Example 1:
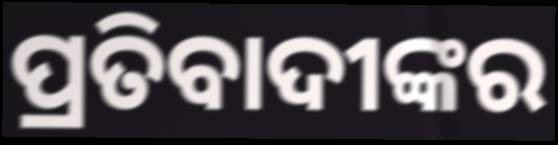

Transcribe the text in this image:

ପ୍ରତିବାଦୀଙ୍କର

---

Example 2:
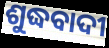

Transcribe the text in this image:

ଶୁଦ୍ଧବାଦୀ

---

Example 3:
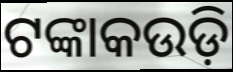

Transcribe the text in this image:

ଟଙ୍କାକଉଡ଼ି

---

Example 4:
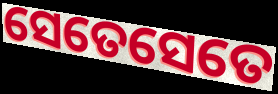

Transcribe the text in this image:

ସେତେସେତେ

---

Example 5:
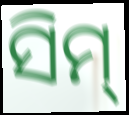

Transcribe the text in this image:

ସିମ୍